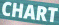
CHART